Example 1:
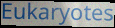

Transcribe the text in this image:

Eukaryotes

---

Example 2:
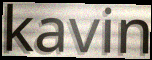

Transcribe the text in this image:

kavin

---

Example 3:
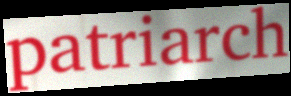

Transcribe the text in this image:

patriarch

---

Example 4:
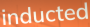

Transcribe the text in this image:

inducted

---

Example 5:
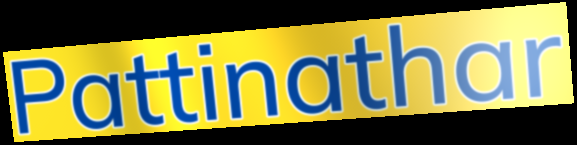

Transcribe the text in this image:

Pattinathar